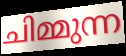
ചിമ്മുന്ന